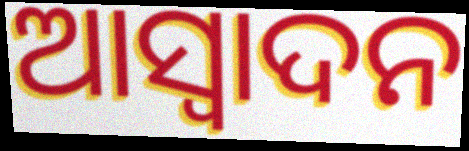
ଆସ୍ୱାଦନ